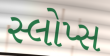
સ્લોપ્સ